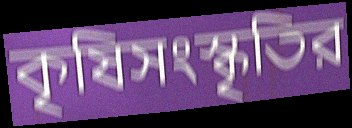
কৃষিসংস্কৃতির